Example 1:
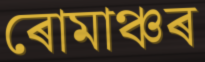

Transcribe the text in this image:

ৰোমাঞ্চৰ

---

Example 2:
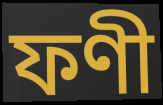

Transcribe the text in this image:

ফণী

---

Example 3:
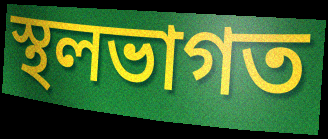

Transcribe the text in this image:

স্থলভাগত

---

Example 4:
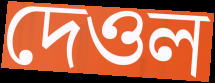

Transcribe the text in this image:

দেওল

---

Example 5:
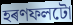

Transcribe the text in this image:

হৰণফলটো